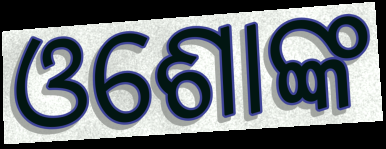
ଓଶୋଙ୍କ